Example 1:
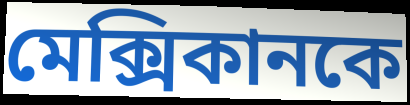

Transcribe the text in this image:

মেক্সিকানকে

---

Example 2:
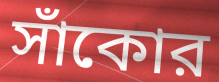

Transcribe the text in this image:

সাঁকোর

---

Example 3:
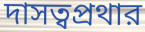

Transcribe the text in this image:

দাসত্বপ্রথার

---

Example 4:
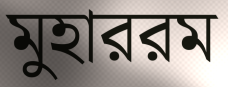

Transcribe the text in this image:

মুহাররম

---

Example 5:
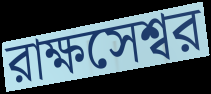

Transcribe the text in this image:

রাক্ষসেশ্বর